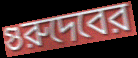
গুরুদেবের